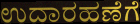
ಉದಾರಹಣೆಗೆ